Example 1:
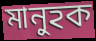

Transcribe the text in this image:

মানুহক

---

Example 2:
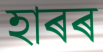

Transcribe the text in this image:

হাৰৰ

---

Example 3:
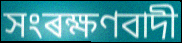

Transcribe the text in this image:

সংৰক্ষণবাদী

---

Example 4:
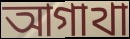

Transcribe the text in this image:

আগাথা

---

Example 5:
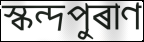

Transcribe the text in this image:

স্কন্দপুৰাণ